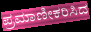
ಪ್ರಮಾಣೀಕರಿಸಿದ